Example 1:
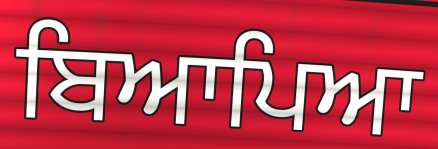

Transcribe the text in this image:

ਬਿਆਪਿਆ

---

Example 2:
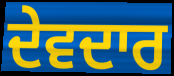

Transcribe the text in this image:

ਦੇਵਦਾਰ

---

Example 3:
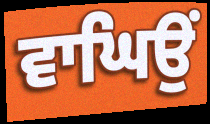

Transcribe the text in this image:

ਵਾਘਿਉਂ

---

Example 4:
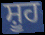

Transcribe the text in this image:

ਸ਼ੂਹ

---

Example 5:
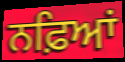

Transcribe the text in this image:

ਨਫ਼ਿਆਂ